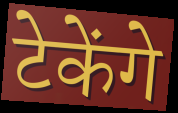
टेकेंगे